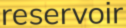
reservoir